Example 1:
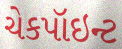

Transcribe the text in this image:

ચેકપૉઇન્ટ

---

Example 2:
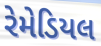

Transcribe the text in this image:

રેમેડિયલ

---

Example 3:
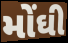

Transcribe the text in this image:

મોંઘી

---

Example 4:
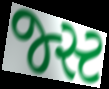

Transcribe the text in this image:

જ્સ્ટ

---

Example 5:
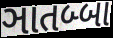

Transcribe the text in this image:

ઞાતબ્બા